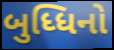
બુધ્ધિનો